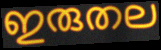
ഇരുതല